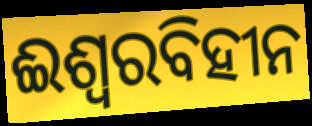
ଈଶ୍ୱରବିହୀନ